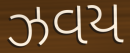
ઝવય